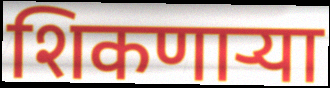
शिकणाऱ्या